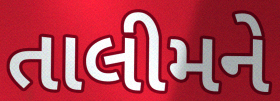
તાલીમને